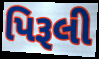
પિરૂલી